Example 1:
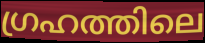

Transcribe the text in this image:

ഗ്രഹത്തിലെ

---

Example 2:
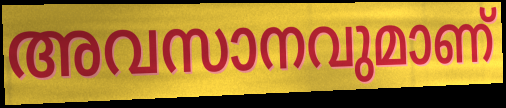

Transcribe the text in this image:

അവസാനവുമാണ്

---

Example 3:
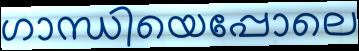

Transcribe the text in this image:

ഗാന്ധിയെപ്പോലെ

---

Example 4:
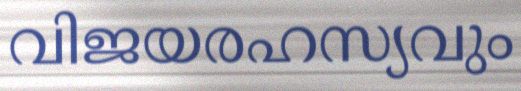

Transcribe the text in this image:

വിജയരഹസ്യവും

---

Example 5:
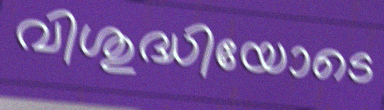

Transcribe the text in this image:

വിശുദ്ധിയോടെ